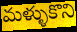
మళ్ళుకొని